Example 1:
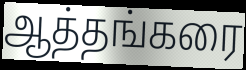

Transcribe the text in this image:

ஆத்தங்கரை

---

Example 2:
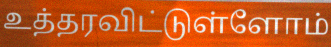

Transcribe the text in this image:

உத்தரவிட்டுள்ளோம்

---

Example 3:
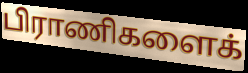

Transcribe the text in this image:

பிராணிகளைக்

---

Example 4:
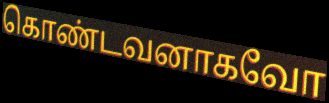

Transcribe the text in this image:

கொண்டவனாகவோ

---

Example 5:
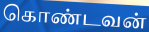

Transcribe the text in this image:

கொண்டவன்